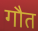
गौत